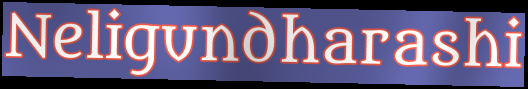
Neligundharashi